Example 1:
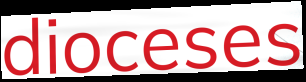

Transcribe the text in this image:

dioceses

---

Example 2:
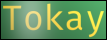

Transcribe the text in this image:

Tokay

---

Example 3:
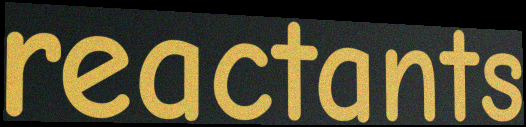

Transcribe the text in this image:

reactants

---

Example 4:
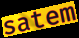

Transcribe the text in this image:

satem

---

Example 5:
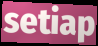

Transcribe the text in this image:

setiap